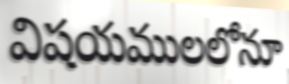
విషయములలోనూ